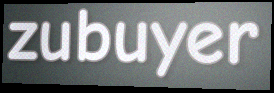
zubuyer